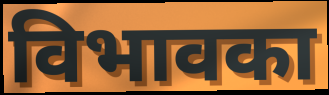
विभावका